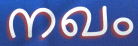
നഖം